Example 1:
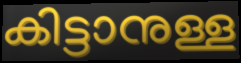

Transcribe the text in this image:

കിട്ടാനുള്ള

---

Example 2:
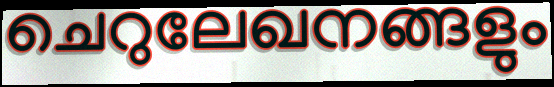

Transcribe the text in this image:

ചെറുലേഖനങ്ങളും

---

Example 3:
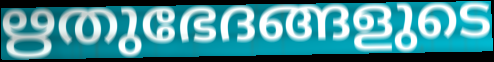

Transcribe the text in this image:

ഋതുഭേദങ്ങളുടെ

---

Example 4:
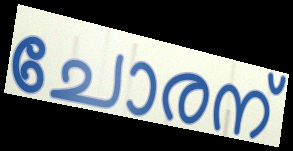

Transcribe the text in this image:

ചോരന്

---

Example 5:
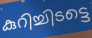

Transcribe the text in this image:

കുറിച്ചിടട്ടെ